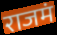
राजमं